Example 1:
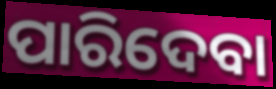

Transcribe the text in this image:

ପାରିଦେବା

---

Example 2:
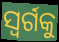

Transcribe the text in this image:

ସ୍ୱର୍ଗକୁ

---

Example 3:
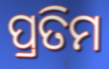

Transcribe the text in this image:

ପ୍ରତିମ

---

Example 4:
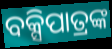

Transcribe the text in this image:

ବକ୍ସିପାତ୍ରଙ୍କ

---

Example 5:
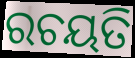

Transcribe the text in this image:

ରଚୟତି